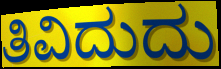
ತಿವಿದುದು